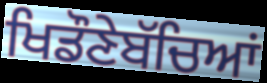
ਖਿਡੌਣੇਬੱਚਿਆਂ